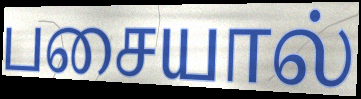
பசையால்